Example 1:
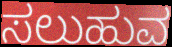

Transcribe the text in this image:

ಸಲುಹುವ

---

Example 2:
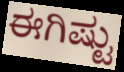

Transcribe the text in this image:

ಈಗಿಷ್ಟು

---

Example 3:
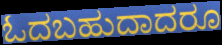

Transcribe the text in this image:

ಓದಬಹುದಾದರೂ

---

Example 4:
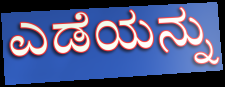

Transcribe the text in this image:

ಎಡೆಯನ್ನು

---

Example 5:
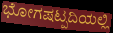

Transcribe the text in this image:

ಭೋಗಷಟ್ಪದಿಯಲ್ಲಿ